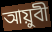
আয়ুবী